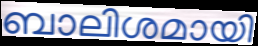
ബാലിശമായി